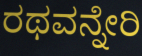
ರಥವನ್ನೇರಿ